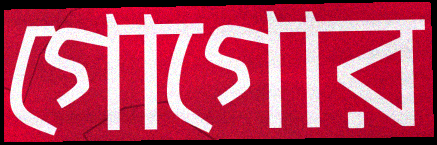
গোগোর